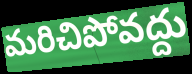
మరిచిపోవద్దు